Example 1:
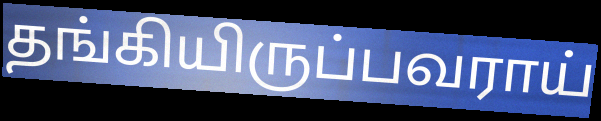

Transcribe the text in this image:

தங்கியிருப்பவராய்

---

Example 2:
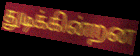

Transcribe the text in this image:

துடிக்கின்றன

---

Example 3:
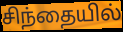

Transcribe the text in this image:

சிந்தையில்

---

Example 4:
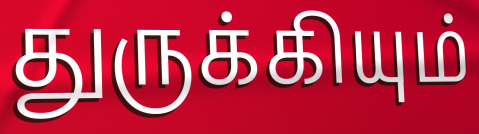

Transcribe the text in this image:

துருக்கியும்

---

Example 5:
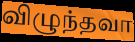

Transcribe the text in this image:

விழுந்தவா